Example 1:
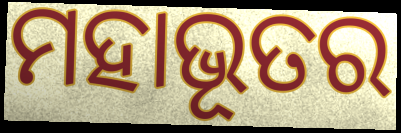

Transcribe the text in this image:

ମହାଭୂତର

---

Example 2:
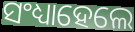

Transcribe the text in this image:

ସଂଧ୍ୟାହେଲେ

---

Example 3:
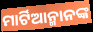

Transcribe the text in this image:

ମାର୍ଟିଆନ୍ମାନଙ୍କ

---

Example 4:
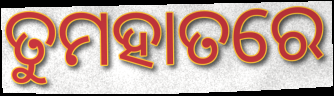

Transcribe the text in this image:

ତୁମହାତରେ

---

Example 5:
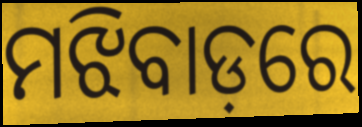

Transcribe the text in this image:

ମଝିବାଡ଼ରେ